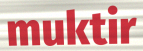
muktir